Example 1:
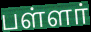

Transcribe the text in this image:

பள்ளர்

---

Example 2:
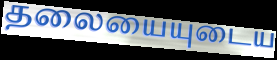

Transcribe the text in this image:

தலையையுடைய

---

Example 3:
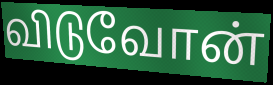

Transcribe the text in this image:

விடுவோன்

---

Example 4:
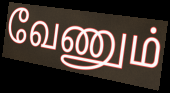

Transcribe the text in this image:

வேணும்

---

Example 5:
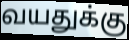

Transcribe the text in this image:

வயதுக்கு